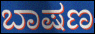
ಬಾಷಣ